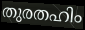
തുരതഹിം